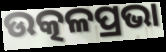
ଉତ୍କଳପ୍ରଭା